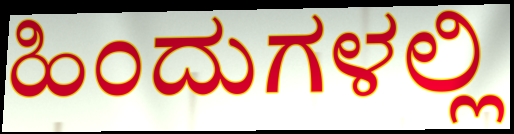
ಹಿಂದುಗಳಲ್ಲಿ